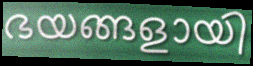
ഭയങ്ങളായി